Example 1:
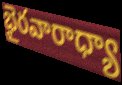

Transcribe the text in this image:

భైరవారాధ్యా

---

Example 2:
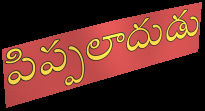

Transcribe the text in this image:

పిప్పలాదుడు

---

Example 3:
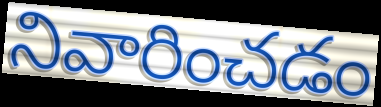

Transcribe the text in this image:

నివారించడం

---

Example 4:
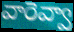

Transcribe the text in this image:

వారెవ్వా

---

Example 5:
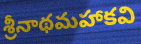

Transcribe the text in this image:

శ్రీనాథమహాకవి